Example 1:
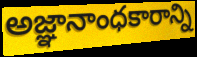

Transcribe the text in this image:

అజ్ఞానాంధకారాన్ని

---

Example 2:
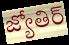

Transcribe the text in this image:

జ్యోతిర్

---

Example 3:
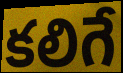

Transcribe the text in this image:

కలిగే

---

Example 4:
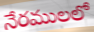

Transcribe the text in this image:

నేరములలో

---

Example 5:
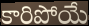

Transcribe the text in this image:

కారిపోయే